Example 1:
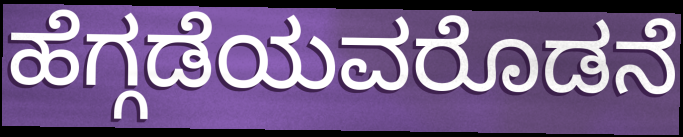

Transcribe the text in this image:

ಹೆಗ್ಗಡೆಯವರೊಡನೆ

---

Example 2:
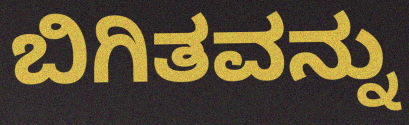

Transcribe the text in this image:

ಬಿಗಿತವನ್ನು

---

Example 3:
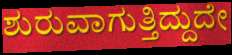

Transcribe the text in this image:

ಶುರುವಾಗುತ್ತಿದ್ದುದೇ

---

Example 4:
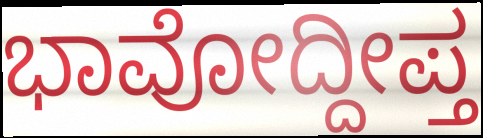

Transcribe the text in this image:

ಭಾವೋದ್ದೀಪ್ತ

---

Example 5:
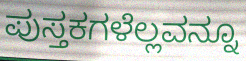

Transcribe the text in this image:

ಪುಸ್ತಕಗಳೆಲ್ಲವನ್ನೂ